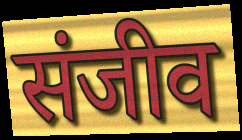
संजीव